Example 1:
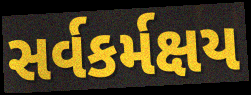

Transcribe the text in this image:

સર્વકર્મક્ષય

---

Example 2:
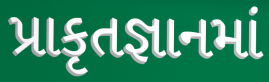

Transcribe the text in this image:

પ્રાકૃતજ્ઞાનમાં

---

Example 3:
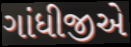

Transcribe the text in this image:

ગાંધીજીએ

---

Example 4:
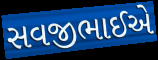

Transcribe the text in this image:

સવજીભાઈએ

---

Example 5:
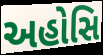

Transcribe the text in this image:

અહોસિ